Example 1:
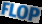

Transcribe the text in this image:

FLOP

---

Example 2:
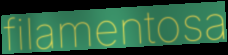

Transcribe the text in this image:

filamentosa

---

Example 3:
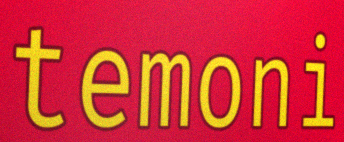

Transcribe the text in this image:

temoni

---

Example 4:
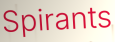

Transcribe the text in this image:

Spirants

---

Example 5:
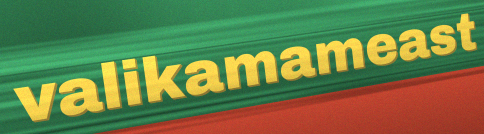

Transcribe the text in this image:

valikamameast